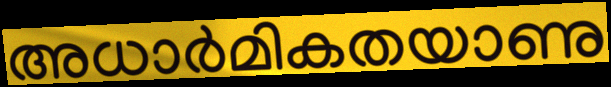
അധാർമികതയാണു